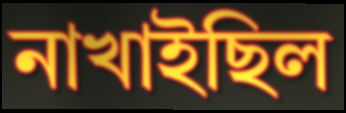
নাখাইছিল